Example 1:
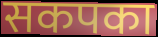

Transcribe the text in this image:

सकपका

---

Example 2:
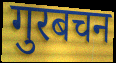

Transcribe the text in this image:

गुरबचन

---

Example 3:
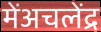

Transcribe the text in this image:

मेंअचलेंद्र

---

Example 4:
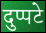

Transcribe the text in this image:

दुप्पटे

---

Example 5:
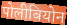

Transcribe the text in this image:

पोलीबियोन